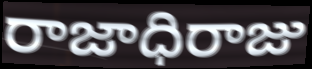
రాజాధిరాజు